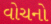
વોચનો